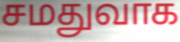
சமதுவாக